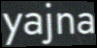
yajna